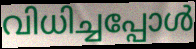
വിധിച്ചപ്പോൾ